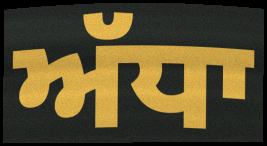
ਅੱਧਾ